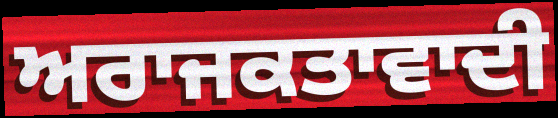
ਅਰਾਜਕਤਾਵਾਦੀ